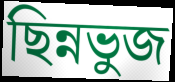
ছিন্নভুজ